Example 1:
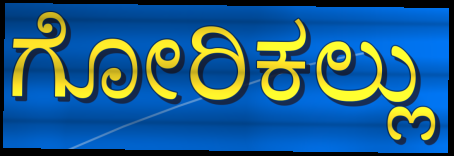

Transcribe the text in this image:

ಗೋರಿಕಲ್ಲು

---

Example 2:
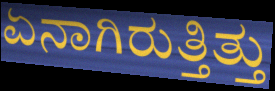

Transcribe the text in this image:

ಏನಾಗಿರುತ್ತಿತ್ತು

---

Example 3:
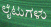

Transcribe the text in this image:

ಲೈಟುಗಳು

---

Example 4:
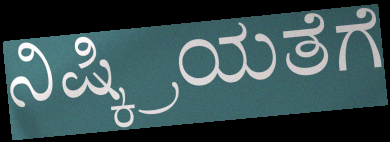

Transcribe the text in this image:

ನಿಷ್ಕ್ರಿಯತೆಗೆ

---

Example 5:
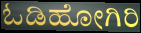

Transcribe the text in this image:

ಓಡಿಹೋಗಿರಿ